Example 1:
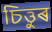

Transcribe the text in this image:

চিত্তুৰ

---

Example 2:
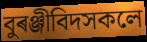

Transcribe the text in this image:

বুৰঞ্জীবিদসকলে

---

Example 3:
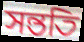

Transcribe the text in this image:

সন্ততি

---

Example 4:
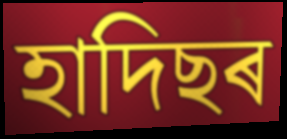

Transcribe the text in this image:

হাদিছৰ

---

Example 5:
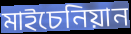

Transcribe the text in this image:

মাইচেনিয়ান